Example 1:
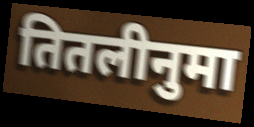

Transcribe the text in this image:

तितलीनुमा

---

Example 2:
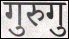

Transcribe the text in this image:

गुरुगु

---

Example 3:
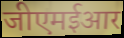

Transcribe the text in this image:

जीएमईआर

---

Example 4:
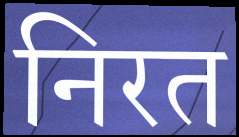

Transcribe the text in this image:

निरत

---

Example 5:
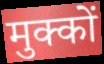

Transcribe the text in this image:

मुक्कों